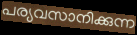
പര്യവസാനിക്കുന്ന